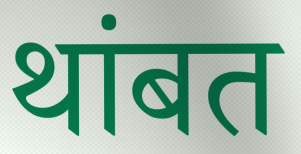
थांबत